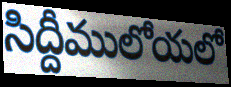
సిద్దీములోయలో